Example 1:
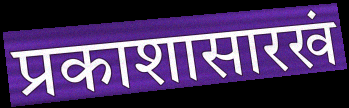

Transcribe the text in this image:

प्रकाशासारखं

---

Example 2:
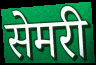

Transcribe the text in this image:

सेमरी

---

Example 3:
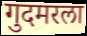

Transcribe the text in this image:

गुदमरला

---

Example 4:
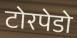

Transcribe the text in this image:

टोरपेडो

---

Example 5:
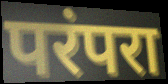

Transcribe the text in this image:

परंपरा